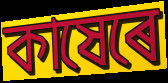
কাষেৰে